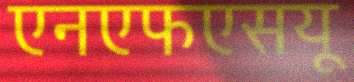
एनएफएसयू